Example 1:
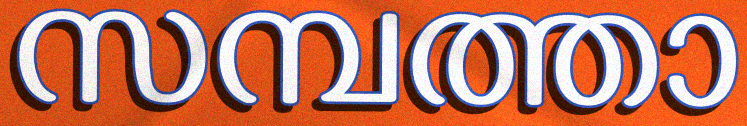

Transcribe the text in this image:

സമ്പത്താ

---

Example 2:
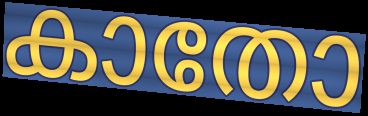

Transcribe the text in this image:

കാതോ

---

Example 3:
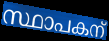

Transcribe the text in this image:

സ്ഥാപകന്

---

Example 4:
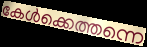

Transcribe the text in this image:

കേൾക്കെത്തന്നെ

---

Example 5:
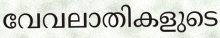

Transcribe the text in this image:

വേവലാതികളുടെ